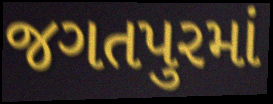
જગતપુરમાં